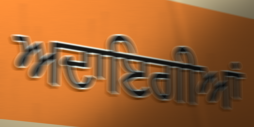
ਅਦਾਇਗੀਆਂ